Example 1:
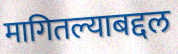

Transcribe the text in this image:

मागितल्याबद्दल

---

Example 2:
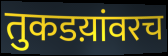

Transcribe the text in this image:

तुकडय़ांवरच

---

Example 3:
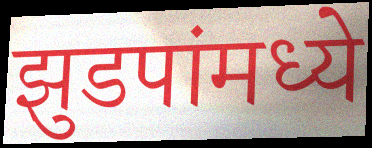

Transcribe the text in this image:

झुडपांमध्ये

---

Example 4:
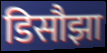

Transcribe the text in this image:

डिसौझा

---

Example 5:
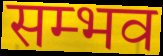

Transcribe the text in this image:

सम्भव